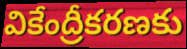
వికేంద్రీకరణకు